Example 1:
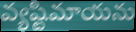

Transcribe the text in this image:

వ్యష్టిమాయను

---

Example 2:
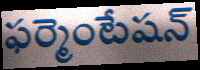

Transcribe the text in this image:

ఫర్మెంటేషన్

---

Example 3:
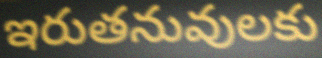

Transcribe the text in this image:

ఇరుతనువులకు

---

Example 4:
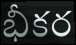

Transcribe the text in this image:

భీకర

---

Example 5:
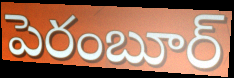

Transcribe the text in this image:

పెరంబూర్